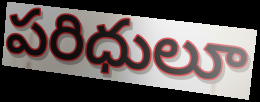
పరిధులూ